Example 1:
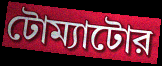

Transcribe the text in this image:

টোম্যাটোর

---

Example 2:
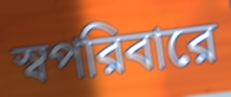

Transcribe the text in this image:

স্বপরিবারে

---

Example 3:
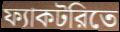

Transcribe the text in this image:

ফ্যাকটরিতে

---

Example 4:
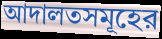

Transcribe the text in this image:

আদালতসমূহের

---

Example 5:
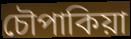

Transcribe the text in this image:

চৌপাকিয়া